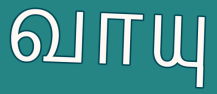
வாயு